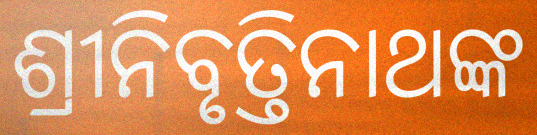
ଶ୍ରୀନିବୃତ୍ତିନାଥଙ୍କ